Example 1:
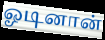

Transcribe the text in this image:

ஓடினான்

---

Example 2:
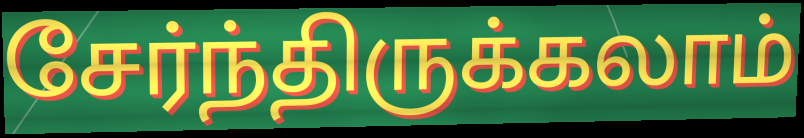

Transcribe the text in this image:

சேர்ந்திருக்கலாம்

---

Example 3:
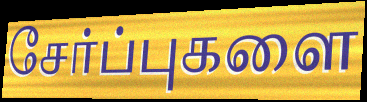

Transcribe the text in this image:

சேர்ப்புகளை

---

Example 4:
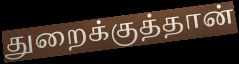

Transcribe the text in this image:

துறைக்குத்தான்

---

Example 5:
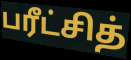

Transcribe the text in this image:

பரீட்சித்